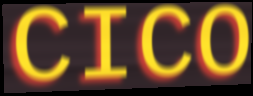
CICO